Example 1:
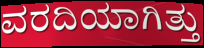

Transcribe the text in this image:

ವರದಿಯಾಗಿತ್ತು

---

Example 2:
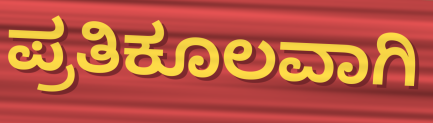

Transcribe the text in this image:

ಪ್ರತಿಕೂಲವಾಗಿ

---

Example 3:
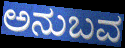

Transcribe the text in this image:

ಅನುಬವ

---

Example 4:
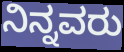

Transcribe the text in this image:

ನಿನ್ನವರು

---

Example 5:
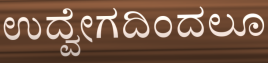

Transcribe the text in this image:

ಉದ್ವೇಗದಿಂದಲೂ